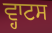
ਵ੍ਹਾਟਸ